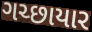
ગચ્છાયાર